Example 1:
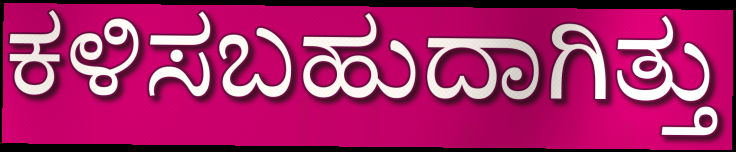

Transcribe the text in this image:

ಕಳಿಸಬಹುದಾಗಿತ್ತು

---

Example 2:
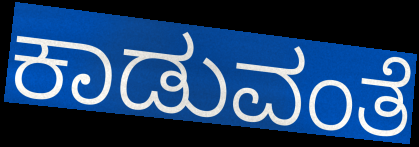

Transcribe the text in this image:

ಕಾಡುವಂತೆ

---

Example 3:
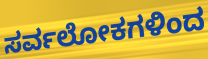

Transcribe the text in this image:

ಸರ್ವಲೋಕಗಳಿಂದ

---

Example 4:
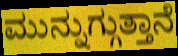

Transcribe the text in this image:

ಮುನ್ನುಗ್ಗುತ್ತಾನೆ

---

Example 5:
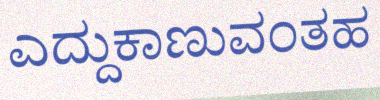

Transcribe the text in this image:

ಎದ್ದುಕಾಣುವಂತಹ